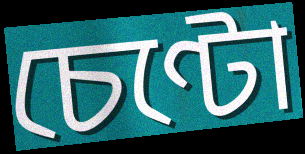
চেণ্টো